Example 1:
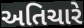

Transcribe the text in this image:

અતિચારે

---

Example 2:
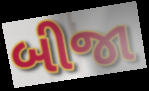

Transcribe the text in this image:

બીજા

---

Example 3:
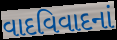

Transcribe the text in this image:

વાદવિવાદનાં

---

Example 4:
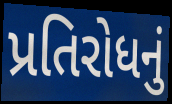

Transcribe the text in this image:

પ્રતિરોધનું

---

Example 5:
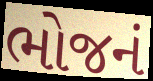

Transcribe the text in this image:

ભોજનં